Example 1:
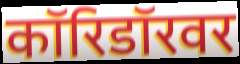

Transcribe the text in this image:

कॉरिडॉरवर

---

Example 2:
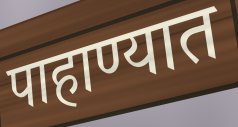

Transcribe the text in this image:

पाहाण्यात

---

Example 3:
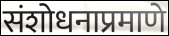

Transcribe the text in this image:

संशोधनाप्रमाणे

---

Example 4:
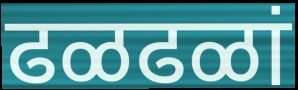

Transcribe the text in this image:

ढळढळां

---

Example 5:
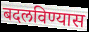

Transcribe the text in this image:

बदलविण्यास